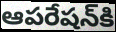
ఆపరేషన్‌కి